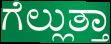
ಗೆಲ್ಲುತ್ತಾ